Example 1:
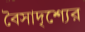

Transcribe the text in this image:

বৈসাদৃশ্যের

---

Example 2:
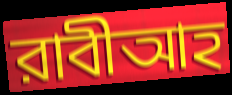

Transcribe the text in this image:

রাবীআহ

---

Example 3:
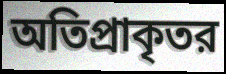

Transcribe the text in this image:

অতিপ্রাকৃতর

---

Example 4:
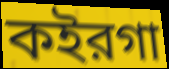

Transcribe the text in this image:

কইরগা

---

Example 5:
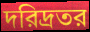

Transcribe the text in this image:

দরিদ্রতর